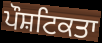
ਪੌਸ਼ਟਿਕਤਾ